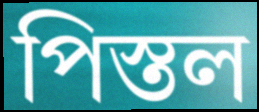
পিস্তল